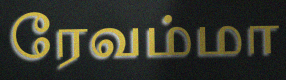
ரேவம்மா